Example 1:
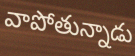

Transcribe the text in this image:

వాపోతున్నాడు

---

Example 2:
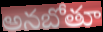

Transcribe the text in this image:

అనబోతూ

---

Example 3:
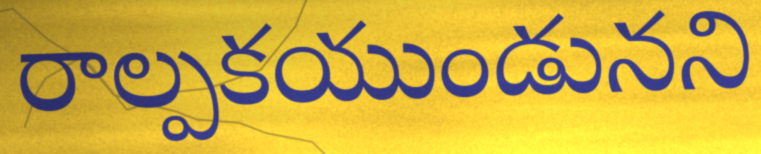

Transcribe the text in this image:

రాల్పకయుండునని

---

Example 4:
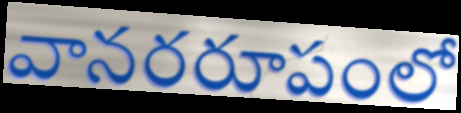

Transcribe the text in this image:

వానరరూపంలో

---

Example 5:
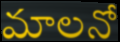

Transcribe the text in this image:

మాలనో